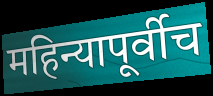
महिन्यापूर्वीच